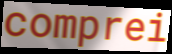
comprei